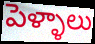
పెళ్ళాలు